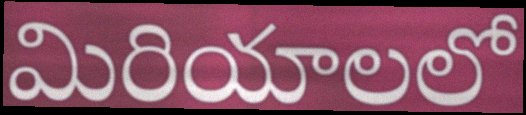
మిరియాలలో